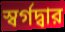
স্বর্গদ্বার